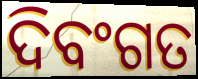
ଦିବଂଗତ